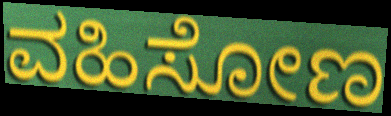
ವಹಿಸೋಣ